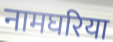
नामघरिया